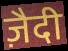
ज़ैदी